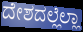
ದೇಶದಲ್ಲೆಲ್ಲಾ